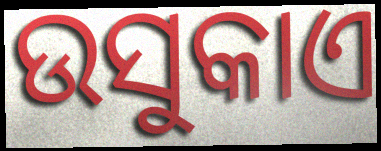
ଉସୁକାଏ